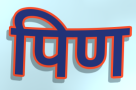
पिण